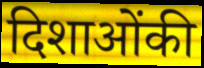
दिशाओंकी